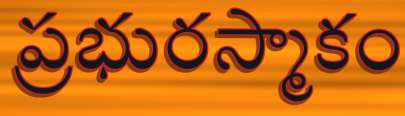
ప్రభురస్మాకం